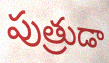
పుత్రుడా